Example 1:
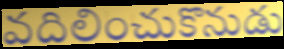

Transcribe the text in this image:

వదిలించుకొనుడు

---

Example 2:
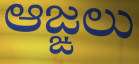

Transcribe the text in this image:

ఆజ్ఙలు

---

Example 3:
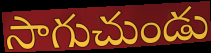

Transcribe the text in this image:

సాగుచుండు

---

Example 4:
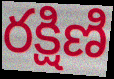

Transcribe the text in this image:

రక్షిణి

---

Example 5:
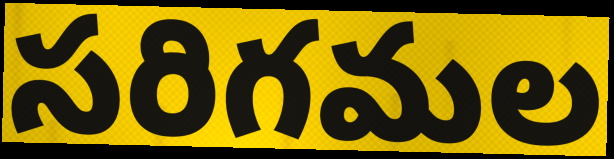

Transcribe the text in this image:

సరిగమల